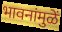
भावनांमुळें